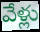
వేళ్లు